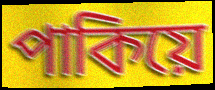
পাকিয়ে